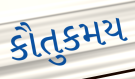
કૌતુકમય